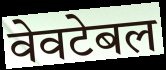
वेवटेबल